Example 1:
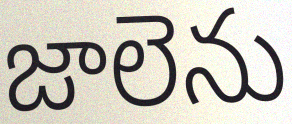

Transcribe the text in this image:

జాలెను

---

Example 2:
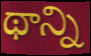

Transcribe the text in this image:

థాన్ని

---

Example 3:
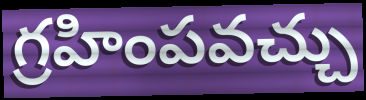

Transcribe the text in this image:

గ్రహింపవచ్చు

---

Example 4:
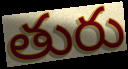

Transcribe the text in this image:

తురు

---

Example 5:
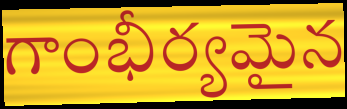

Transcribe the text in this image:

గాంభీర్యమైన